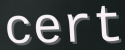
cert